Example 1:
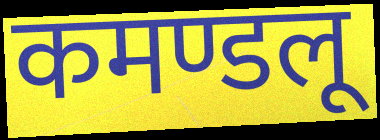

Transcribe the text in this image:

कमण्डलू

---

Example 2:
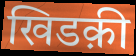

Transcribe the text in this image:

खिडक़ी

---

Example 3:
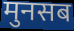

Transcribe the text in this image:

मुनसब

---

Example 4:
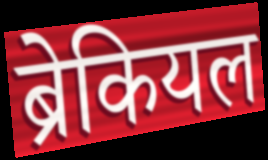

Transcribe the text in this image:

ब्रेकियल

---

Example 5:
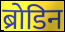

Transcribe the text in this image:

ब्रोडिन